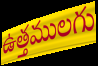
ఉత్తములగు